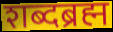
शब्दब्रह्म